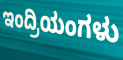
ಇಂದ್ರಿಯಂಗಳು